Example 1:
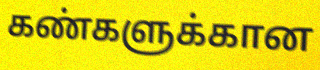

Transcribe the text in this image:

கண்களுக்கான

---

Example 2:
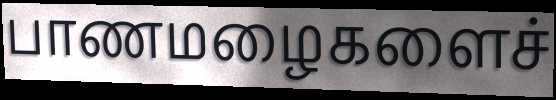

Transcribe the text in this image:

பாணமழைகளைச்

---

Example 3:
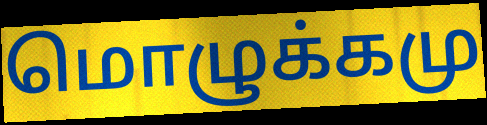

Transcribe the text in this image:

மொழுக்கமு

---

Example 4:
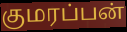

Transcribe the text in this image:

குமரப்பன்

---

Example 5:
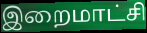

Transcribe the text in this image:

இறைமாட்சி